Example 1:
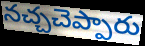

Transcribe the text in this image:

నచ్చచెప్పారు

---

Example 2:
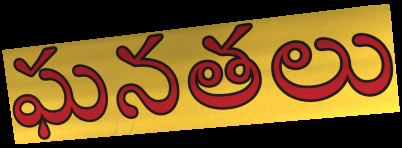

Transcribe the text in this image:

ఘనతలు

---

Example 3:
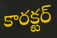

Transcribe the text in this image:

కారక్టర్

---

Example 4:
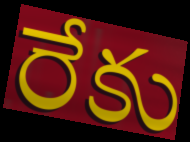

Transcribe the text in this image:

రేకు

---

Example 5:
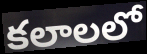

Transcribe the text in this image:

కలాలలో